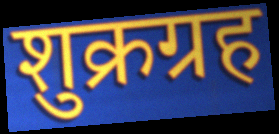
शुक्रग्रह